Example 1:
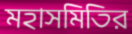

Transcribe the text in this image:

মহাসমিতির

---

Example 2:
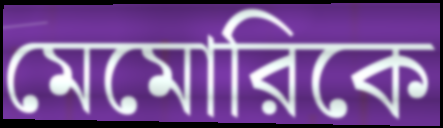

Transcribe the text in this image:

মেমোরিকে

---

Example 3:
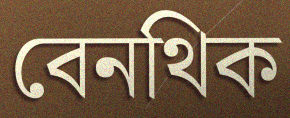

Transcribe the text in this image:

বেনথিক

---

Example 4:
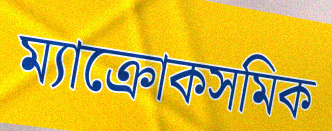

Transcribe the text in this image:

ম্যাক্রোকসমিক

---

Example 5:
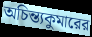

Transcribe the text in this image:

অচিন্ত্যকুমারের